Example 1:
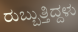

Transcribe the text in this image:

ರುಬ್ಬುತ್ತಿದ್ದಳು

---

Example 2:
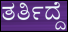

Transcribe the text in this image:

ತರ್ತಿದ್ದೆ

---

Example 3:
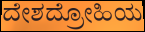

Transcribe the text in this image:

ದೇಶದ್ರೋಹಿಯ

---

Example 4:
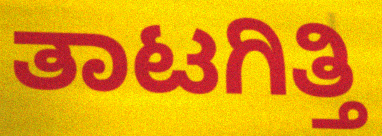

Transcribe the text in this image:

ತಾಟಗಿತ್ತಿ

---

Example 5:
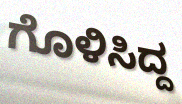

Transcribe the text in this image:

ಗೊಳಿಸಿದ್ದ